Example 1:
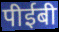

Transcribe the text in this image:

पीईबी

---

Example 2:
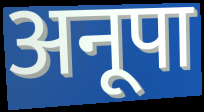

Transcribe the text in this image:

अनूपा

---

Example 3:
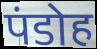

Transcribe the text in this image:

पंडोह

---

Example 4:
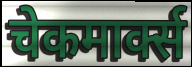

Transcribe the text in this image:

चेकमार्क्स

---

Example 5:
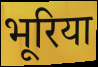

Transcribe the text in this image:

भूरिया